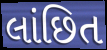
લાંછિત